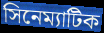
সিনেম্যাটিক